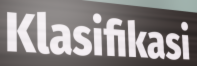
Klasifikasi